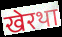
खेरथा